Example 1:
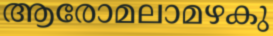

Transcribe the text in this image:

ആരോമലാമഴകു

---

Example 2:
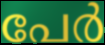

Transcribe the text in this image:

പേർ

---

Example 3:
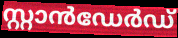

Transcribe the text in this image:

സ്റ്റാൻഡേർഡ്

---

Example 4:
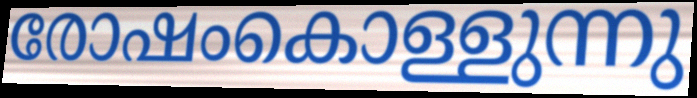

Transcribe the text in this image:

രോഷംകൊള്ളുന്നു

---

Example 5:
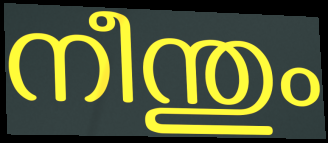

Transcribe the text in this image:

നീന്തും